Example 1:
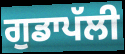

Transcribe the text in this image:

ਗੁਡਾਪੱਲੀ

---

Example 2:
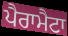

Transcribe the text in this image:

ਪੈਰਾਮੈਟਾ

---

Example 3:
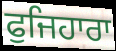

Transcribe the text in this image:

ਫੁਜਿਹਾਰਾ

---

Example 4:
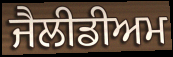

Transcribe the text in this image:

ਜੈਲੀਡੀਅਮ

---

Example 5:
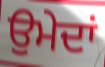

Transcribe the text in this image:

ਉਮੇਦਾਂ